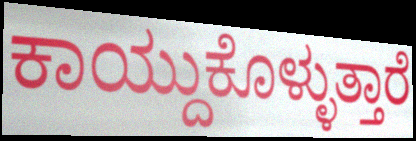
ಕಾಯ್ದುಕೊಳ್ಳುತ್ತಾರೆ